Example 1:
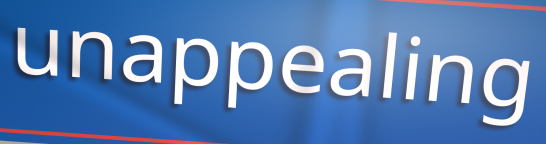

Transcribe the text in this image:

unappealing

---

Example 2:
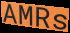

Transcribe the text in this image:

AMRs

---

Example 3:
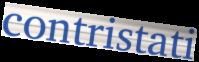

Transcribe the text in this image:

contristati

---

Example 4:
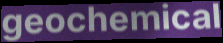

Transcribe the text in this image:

geochemical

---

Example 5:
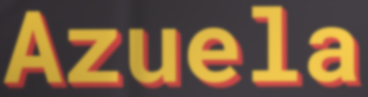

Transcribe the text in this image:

Azuela